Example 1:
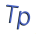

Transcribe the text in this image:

Tp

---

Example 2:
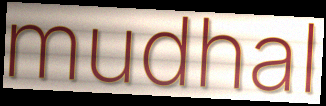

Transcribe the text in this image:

mudhal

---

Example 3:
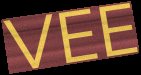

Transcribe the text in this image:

VEE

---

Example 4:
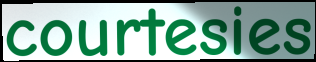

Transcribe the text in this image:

courtesies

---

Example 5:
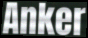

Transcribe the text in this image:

Anker